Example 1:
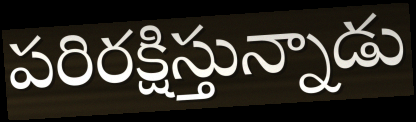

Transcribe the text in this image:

పరిరక్షిస్తున్నాడు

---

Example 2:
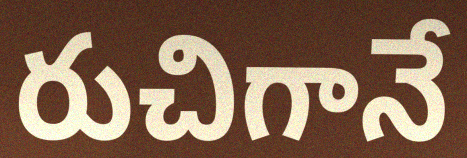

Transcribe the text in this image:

రుచిగానే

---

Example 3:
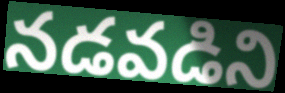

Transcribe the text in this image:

నడవడిని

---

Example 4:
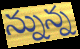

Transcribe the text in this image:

న్నున్న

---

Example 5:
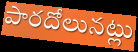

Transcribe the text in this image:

పారదోలునట్లు